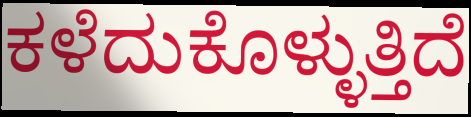
ಕಳೆದುಕೊಳ್ಳುತ್ತಿದೆ